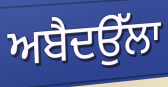
ਅਬੈਦਉੱਲਾ